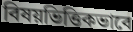
বিষয়ভিত্তিকভাবে